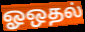
ஓஒதல்